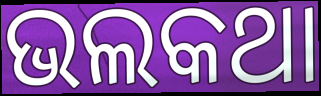
ଭଲକଥା